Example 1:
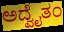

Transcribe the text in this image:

ಅದ್ವೈತಂ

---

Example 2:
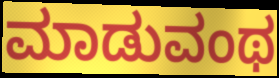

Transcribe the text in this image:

ಮಾಡುವಂಥ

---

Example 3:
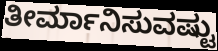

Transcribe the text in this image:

ತೀರ್ಮಾನಿಸುವಷ್ಟು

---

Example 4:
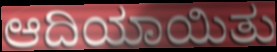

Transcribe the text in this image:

ಆದಿಯಾಯಿತು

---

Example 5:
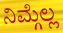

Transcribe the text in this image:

ನಿಮ್ಗೆಲ್ಲ